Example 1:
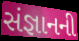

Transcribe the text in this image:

સંજ્ઞાનની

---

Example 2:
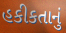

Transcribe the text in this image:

હકીકતાનું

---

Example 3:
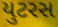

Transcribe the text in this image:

યુટરસ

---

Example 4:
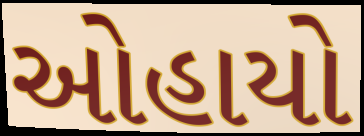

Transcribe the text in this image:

ઓહાયો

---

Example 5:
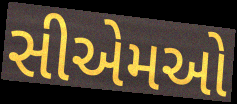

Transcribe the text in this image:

સીએમઓ